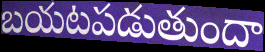
బయటపడుతుందా